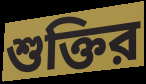
শুক্তির